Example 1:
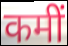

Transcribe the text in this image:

कमीं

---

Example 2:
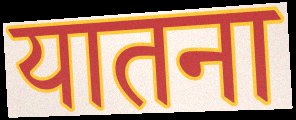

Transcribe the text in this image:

यातना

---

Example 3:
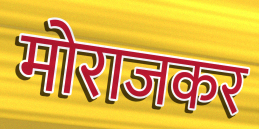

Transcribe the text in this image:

मोराजकर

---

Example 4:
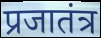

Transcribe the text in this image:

प्रजातंत्र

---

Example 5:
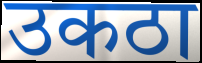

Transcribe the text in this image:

उकठा